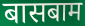
बासबाम